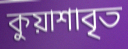
কুয়াশাবৃত